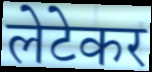
लेटेकर